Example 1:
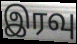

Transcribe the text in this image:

இரவு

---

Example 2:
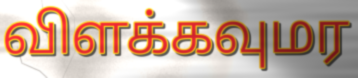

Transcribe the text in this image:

விளக்கவுமர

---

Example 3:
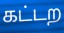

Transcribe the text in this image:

கட்டற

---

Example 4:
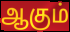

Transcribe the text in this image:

ஆகும்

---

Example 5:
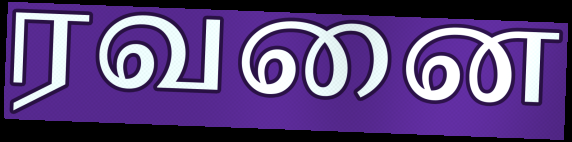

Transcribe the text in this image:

ரவனை